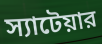
স্যাটেয়ার